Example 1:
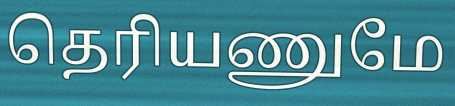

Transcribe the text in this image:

தெரியணுமே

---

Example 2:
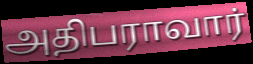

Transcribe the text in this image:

அதிபராவார்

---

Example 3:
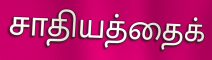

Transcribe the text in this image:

சாதியத்தைக்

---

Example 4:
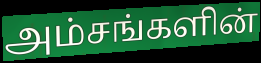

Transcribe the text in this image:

அம்சங்களின்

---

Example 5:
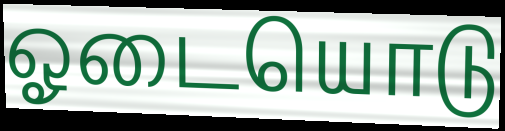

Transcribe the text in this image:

ஓடையொடு